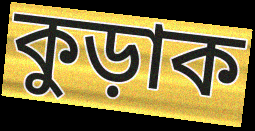
কুড়াক